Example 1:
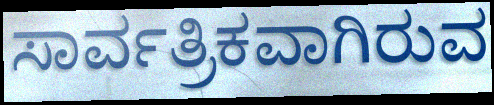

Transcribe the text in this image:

ಸಾರ್ವತ್ರಿಕವಾಗಿರುವ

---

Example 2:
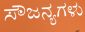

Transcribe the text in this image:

ಸೌಜನ್ಯಗಳು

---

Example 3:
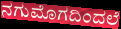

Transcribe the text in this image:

ನಗುಮೊಗದಿಂದಲೆ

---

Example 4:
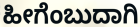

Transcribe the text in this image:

ಹೀಗೆಂಬುದಾಗಿ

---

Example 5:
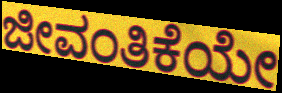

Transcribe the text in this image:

ಜೀವಂತಿಕೆಯೇ